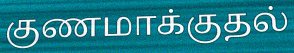
குணமாக்குதல்